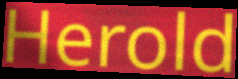
Herold